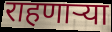
राहणार्‍या